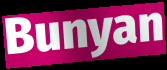
Bunyan